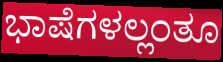
ಭಾಷೆಗಳಲ್ಲಂತೂ